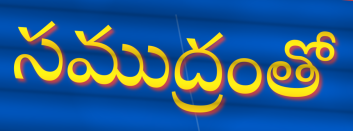
సముద్రంతో